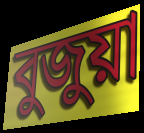
বুজুয়া